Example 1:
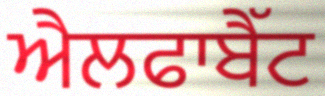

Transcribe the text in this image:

ਐਲਫਾਬੈੱਟ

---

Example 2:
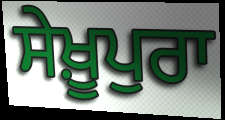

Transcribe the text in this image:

ਸੇਖ਼ੂਪੁਰਾ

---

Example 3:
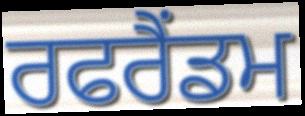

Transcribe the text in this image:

ਰਫਰੈਂਡਮ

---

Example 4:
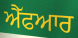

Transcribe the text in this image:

ਐੱਫਆਰ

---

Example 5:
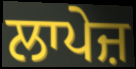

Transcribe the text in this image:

ਲਾਪੇਜ਼